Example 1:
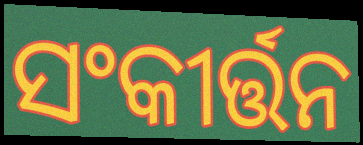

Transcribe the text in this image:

ସଂକୀର୍ତ୍ତନ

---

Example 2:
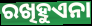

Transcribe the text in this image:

ରଖିହୁଏନା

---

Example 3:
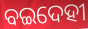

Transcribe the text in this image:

ବଇଦେହୀ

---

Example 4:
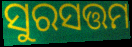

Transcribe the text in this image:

ସୁରସତ୍ତମ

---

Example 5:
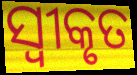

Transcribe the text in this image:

ସ୍ଵୀକୃତ